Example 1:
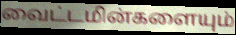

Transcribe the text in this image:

வைட்டமின்களையும்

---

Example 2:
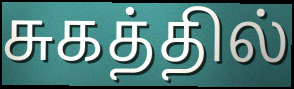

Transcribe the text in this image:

சுகத்தில்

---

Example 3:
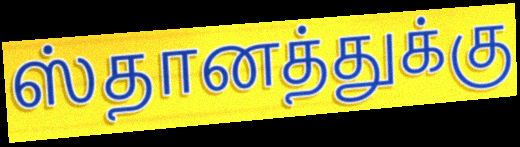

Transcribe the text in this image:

ஸ்தானத்துக்கு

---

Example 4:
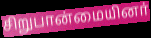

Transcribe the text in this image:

சிறுபான்மையினர்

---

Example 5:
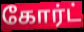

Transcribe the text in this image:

கோர்ட்